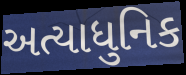
અત્યાધુનિક